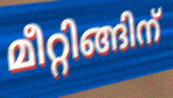
മീറ്റിങ്ങിന്